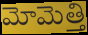
మోమెత్తి